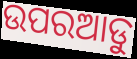
ଉପରଆଡୁ